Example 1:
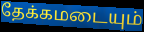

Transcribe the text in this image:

தேக்கமடையும்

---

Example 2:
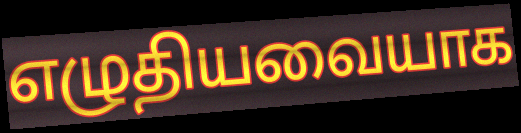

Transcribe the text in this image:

எழுதியவையாக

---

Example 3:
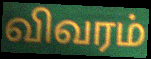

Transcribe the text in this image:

விவரம்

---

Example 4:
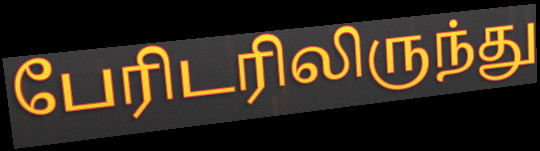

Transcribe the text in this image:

பேரிடரிலிருந்து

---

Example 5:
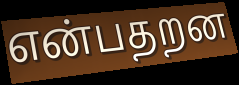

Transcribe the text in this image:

என்பதறன